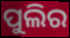
ପୁଲିର